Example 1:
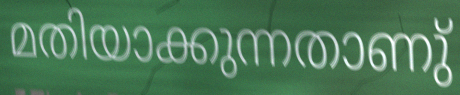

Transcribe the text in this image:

മതിയാക്കുന്നതാണു്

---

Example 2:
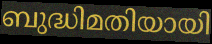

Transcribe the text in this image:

ബുദ്ധിമതിയായി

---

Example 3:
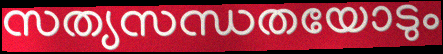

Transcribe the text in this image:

സത്യസന്ധതയോടും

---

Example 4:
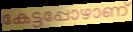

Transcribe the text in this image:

കേട്ടപ്പോഴാണ്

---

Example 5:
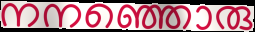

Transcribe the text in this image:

നനഞ്ഞൊരു